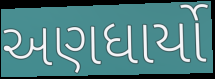
અણધાર્યો